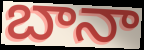
బానా